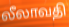
லீலாவதி